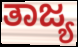
ತಾಜ್ಯ